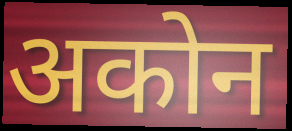
अकोन